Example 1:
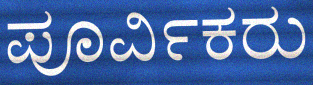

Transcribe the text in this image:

ಪೂರ್ವಿಕರು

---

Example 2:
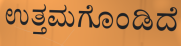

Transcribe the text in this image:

ಉತ್ತಮಗೊಂಡಿದೆ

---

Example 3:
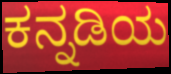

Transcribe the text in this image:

ಕನ್ನಡಿಯ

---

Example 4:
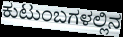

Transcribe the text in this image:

ಕುಟುಂಬಗಳಲ್ಲಿನ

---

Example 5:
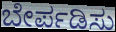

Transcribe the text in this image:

ಬೇರ್ಪಡಿಸು